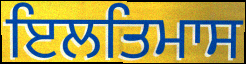
ਇਲਤਿਮਾਸ